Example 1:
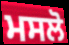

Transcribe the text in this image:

ਮਸਲੋ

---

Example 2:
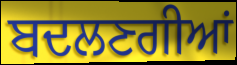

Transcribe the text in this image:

ਬਦਲਣਗੀਆਂ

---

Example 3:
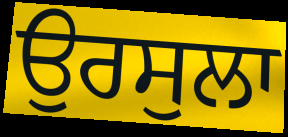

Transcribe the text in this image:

ਉਰਸੁਲਾ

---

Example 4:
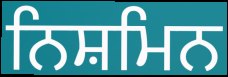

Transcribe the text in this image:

ਨਿਸ਼ਮਿਨ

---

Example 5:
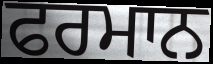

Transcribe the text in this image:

ਫਰਮਾਨ